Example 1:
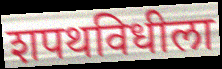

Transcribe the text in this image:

शपथविधीला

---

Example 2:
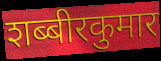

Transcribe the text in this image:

शब्बीरकुमार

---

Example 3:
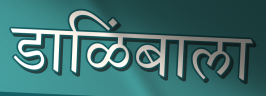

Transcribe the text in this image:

डाळिंबाला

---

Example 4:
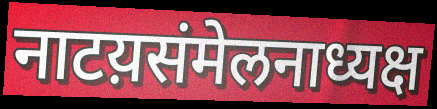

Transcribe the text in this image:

नाटय़संमेलनाध्यक्ष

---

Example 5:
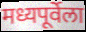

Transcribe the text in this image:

मध्यपूर्वेला